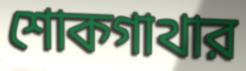
শোকগাথার